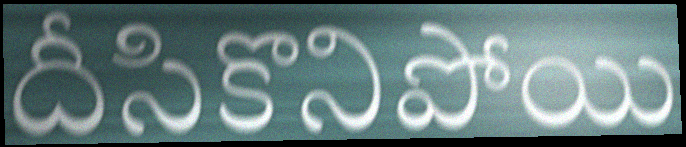
దీసికొనిపోయి